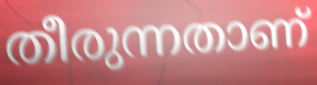
തീരുന്നതാണ്